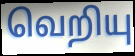
வெறியு